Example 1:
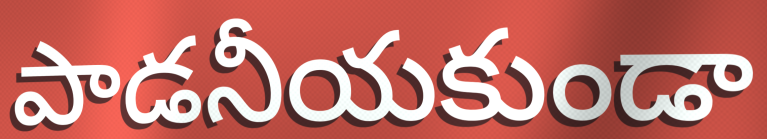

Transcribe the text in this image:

పాడనీయకుండా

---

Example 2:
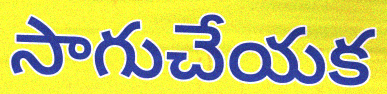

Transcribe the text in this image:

సాగుచేయక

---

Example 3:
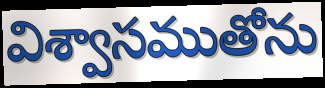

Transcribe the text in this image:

విశ్వాసముతోను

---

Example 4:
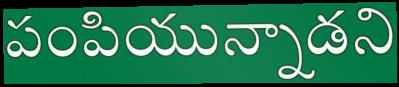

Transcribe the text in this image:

పంపియున్నాడని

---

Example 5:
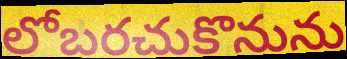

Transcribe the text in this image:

లోబరచుకొనును